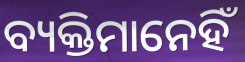
ବ୍ୟକ୍ତିମାନେହିଁ